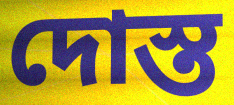
দোস্ত